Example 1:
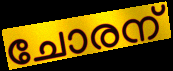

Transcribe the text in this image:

ചോരന്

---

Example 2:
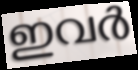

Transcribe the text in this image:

ഇവർ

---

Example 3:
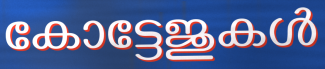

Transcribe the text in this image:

കോട്ടേജുകൾ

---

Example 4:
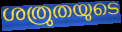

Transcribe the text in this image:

ശത്രുതയുടെ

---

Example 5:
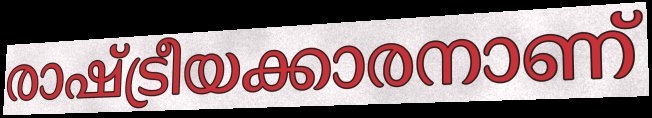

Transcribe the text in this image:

രാഷ്ട്രീയക്കാരനാണ്